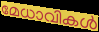
മേധാവികൾ